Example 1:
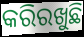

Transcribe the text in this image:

କରିରଖୁଛି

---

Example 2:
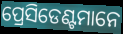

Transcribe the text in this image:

ପ୍ରେସିଡେଣ୍ଟମାନେ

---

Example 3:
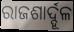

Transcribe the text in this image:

ରାଜଶାର୍ଦ୍ଦୂଳ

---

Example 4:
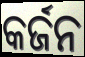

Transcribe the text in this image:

କର୍ଜନ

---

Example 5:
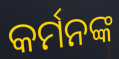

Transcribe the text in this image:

କର୍ମନଙ୍କ